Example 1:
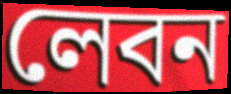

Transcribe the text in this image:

লেবন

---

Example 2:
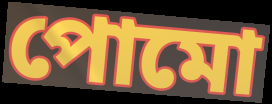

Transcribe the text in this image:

পোমো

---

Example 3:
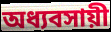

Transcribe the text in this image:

অধ্যবসায়ী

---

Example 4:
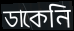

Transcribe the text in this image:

ডাকেনি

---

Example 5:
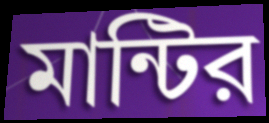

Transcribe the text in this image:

মান্টির